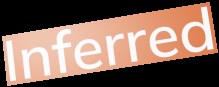
Inferred